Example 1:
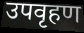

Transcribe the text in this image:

उपवृहण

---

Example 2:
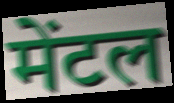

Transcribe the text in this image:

मेंटल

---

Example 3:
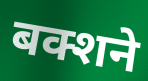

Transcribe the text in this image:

बक्शने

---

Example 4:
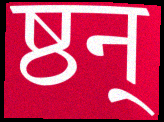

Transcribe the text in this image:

ष्ठन्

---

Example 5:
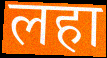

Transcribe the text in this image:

लहा